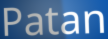
Patan